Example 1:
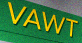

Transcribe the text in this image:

VAWT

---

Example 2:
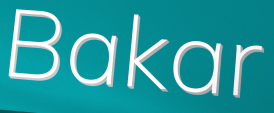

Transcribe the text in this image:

Bakar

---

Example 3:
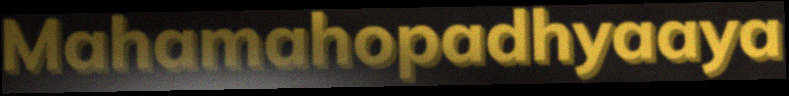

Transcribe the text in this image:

Mahamahopadhyaaya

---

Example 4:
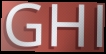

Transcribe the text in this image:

GHI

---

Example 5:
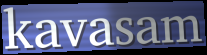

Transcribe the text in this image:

kavasam